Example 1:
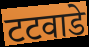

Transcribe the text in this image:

टटवाडे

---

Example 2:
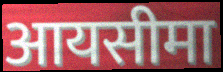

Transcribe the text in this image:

आयसीमा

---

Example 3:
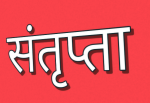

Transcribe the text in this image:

संतृप्ता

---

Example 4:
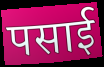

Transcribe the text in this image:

पसाई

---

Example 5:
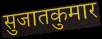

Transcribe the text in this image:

सुजातकुमार